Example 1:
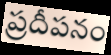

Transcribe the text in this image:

ప్రదీపనం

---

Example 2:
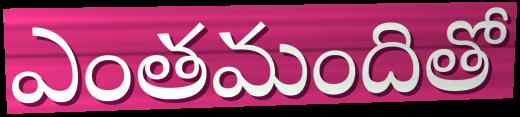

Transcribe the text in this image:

ఎంతమందితో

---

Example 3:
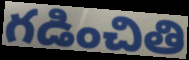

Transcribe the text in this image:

గడించితి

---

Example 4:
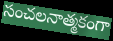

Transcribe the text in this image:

సంచలనాత్మకంగా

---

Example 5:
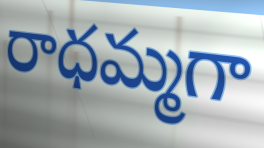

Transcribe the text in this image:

రాధమ్మగా